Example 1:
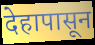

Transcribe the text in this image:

देहापासून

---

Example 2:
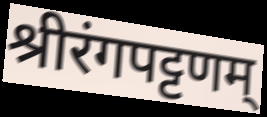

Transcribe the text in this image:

श्रीरंगपट्टणम्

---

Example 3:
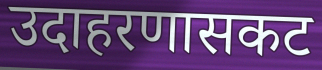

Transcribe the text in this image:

उदाहरणासकट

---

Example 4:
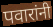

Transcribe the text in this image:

पवारांनी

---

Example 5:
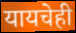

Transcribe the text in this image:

यायचेही